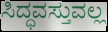
ಸಿದ್ಧವಸ್ತುವಲ್ಲ